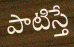
పాటిస్తే